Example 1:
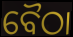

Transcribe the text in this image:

ବୈଠା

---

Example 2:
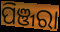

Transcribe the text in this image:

ପିଞ୍ଜରା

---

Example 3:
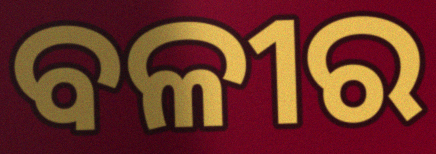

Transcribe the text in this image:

ବଳୀର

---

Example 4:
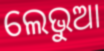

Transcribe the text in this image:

ଲେଭୁଆ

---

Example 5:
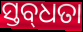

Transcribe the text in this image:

ସ୍ତବ୍‌ଧତା